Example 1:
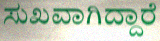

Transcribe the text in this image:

ಸುಖವಾಗಿದ್ದಾರೆ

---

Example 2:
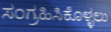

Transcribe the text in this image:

ಸಂಗ್ರಹಿಸಿಕೊಳ್ಳಲು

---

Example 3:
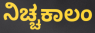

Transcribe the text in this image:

ನಿಚ್ಚಕಾಲಂ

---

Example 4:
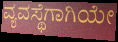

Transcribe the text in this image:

ವ್ಯವಸ್ಥೆಗಾಗಿಯೇ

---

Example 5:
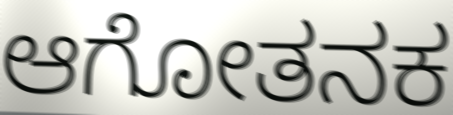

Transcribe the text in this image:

ಆಗೋತನಕ